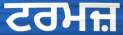
ਟਰਮਜ਼